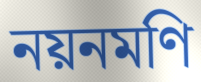
নয়নমণি